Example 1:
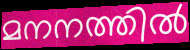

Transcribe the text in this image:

മനനത്തിൽ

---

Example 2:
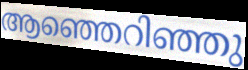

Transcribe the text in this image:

ആഞ്ഞെറിഞ്ഞു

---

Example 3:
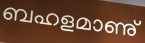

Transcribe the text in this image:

ബഹളമാണു്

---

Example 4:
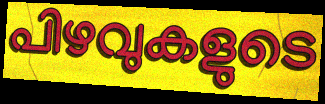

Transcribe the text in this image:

പിഴവുകളുടെ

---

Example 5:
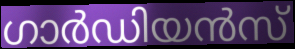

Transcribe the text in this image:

ഗാർഡിയൻസ്